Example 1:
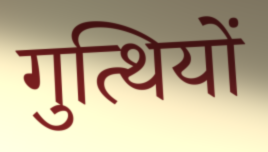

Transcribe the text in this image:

गुत्थियों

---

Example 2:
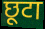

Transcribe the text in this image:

छूटा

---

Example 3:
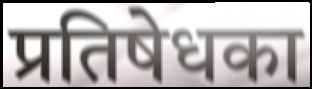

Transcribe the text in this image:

प्रतिषेधका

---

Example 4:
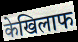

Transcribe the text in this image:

केखिलाफ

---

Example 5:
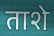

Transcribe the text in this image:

ताशे